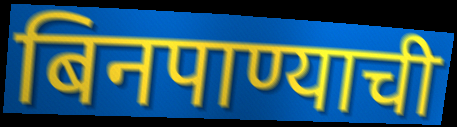
बिनपाण्याची